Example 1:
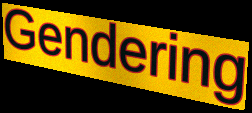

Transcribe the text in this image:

Gendering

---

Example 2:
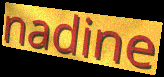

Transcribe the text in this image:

nadine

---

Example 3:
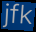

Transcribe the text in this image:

jfk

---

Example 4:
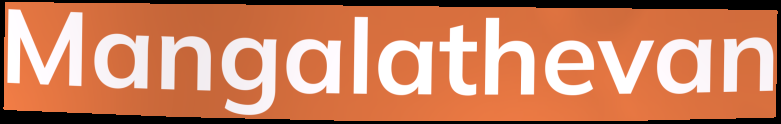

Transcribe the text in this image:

Mangalathevan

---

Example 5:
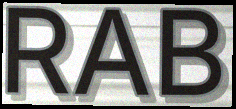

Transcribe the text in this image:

RAB